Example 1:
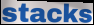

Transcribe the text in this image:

stacks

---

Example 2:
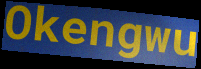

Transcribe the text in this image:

Okengwu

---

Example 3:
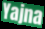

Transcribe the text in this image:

Yajna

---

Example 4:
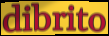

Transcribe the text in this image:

dibrito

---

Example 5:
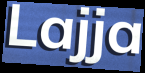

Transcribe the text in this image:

Lajja